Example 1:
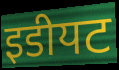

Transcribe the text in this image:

इडीयट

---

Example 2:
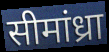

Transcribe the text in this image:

सीमांध्रा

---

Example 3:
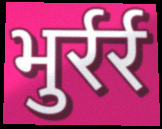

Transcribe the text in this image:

भुर्रर्र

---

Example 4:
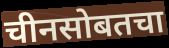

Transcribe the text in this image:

चीनसोबतचा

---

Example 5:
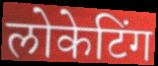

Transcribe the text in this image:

लोकेटिंग